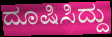
ದೂಷಿಸಿದ್ದು